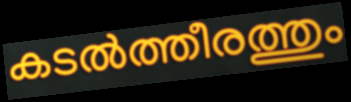
കടൽത്തീരത്തും